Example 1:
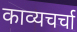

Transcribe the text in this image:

काव्यचर्चा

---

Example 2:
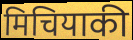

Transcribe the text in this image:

मिचियाकी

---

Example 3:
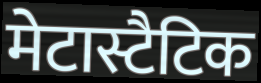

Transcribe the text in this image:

मेटास्टैटिक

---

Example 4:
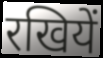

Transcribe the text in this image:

रखियें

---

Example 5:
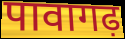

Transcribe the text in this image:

पावागढ़